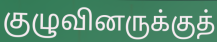
குழுவினருக்குத்